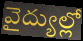
వైద్యుల్లో